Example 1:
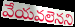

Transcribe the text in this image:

వేయవలెనని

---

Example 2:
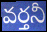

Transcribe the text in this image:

వర్తనీ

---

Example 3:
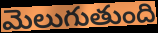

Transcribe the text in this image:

మెలుగుతుంది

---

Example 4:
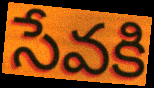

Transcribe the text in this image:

సేవకి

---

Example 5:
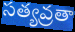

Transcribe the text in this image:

సత్యవ్రతా